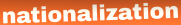
nationalization